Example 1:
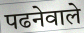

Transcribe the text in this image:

पढनेवाले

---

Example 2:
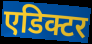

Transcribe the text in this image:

एडिक्टर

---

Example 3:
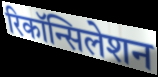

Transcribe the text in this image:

रिकॉन्सिलेशन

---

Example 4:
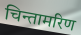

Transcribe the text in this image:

चिन्तामरिण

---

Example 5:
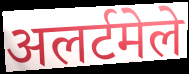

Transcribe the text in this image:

अलर्टमेले